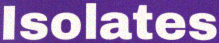
Isolates